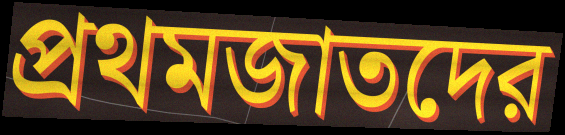
প্রথমজাতদের